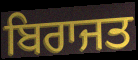
ਬਿਰਾਜਤ